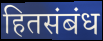
हितसंबंध